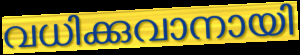
വധിക്കുവാനായി